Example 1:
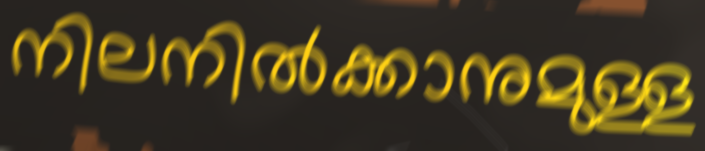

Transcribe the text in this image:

നിലനിൽക്കാനുമുള്ള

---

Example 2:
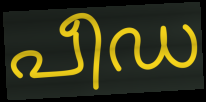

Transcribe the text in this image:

പീഡ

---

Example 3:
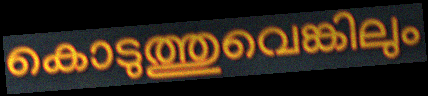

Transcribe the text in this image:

കൊടുത്തുവെങ്കിലും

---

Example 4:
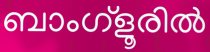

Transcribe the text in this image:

ബാംഗ്ളൂരിൽ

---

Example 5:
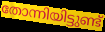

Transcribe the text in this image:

തോന്നിയിട്ടുണ്ട്